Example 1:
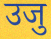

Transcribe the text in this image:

उजु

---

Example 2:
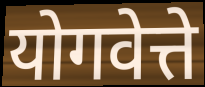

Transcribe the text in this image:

योगवेत्ते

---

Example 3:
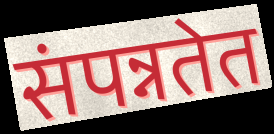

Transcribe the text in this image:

संपन्नतेत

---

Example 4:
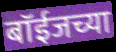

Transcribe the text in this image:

बॉईजच्या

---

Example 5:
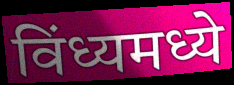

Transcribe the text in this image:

विंध्यमध्ये